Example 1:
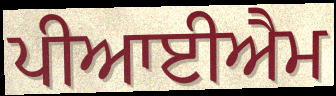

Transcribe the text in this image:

ਪੀਆਈਐਮ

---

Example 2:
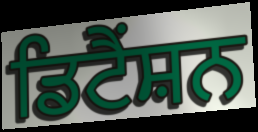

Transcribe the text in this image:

ਡਿਟੈਂਸ਼ਨ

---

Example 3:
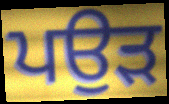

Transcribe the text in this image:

ਪਉੜ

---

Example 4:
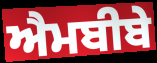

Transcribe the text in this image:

ਐਮਬੀਬੇ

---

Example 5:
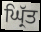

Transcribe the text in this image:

ਘ੍ਰਿੱਤ